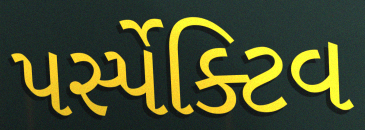
પર્સ્પેક્ટિવ